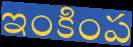
ఇంకింప